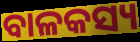
ବାଳକସ୍ୟ